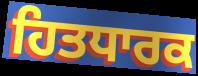
ਹਿਤਧਾਰਕ